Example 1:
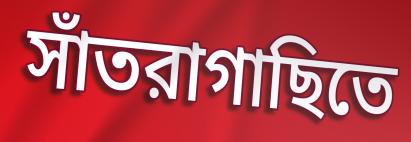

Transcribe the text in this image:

সাঁতরাগাছিতে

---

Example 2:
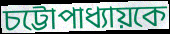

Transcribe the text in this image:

চট্টোপাধ্যায়কে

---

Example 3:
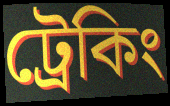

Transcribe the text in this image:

ট্রেকিং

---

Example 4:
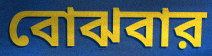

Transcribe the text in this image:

বোঝবার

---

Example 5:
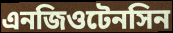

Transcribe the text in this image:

এনজিওটেনসিন